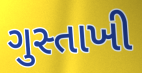
ગુસ્તાખી